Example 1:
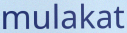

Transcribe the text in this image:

mulakat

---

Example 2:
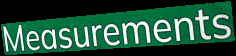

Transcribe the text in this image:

Measurements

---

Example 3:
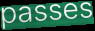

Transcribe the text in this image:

passes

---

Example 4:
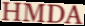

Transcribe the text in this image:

HMDA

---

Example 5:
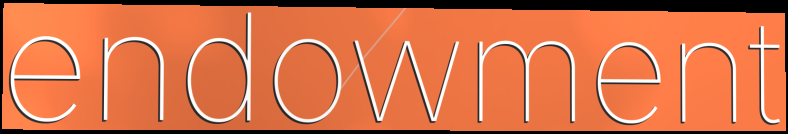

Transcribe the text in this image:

endowment